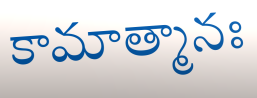
కామాత్మానః